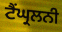
ਟੈਂਘ੍ਰਲਨੀ